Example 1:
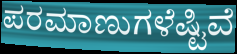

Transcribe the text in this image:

ಪರಮಾಣುಗಳೆಷ್ಟಿವೆ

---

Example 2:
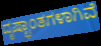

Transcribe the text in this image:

ದೃಷ್ಟಾಂತಗಳಾಗಿವೆ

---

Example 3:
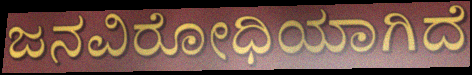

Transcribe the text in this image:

ಜನವಿರೋಧಿಯಾಗಿದೆ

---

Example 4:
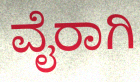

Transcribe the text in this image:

ವೈರಾಗಿ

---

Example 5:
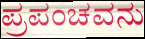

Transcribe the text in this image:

ಪ್ರಪಂಚವನು